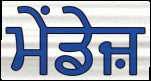
ਮੇਂਡੇਜ਼